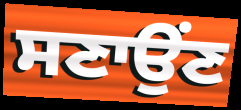
ਸਣਾਉਂਣ